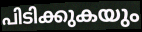
പിടിക്കുകയും